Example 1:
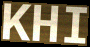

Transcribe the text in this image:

KHI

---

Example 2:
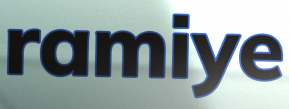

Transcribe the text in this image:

ramiye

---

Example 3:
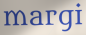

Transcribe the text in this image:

margi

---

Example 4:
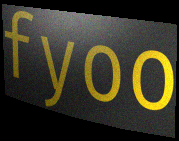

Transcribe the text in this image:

fyoo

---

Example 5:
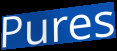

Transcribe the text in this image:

Pures